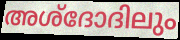
അശ്ദോദിലും